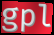
gpl